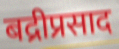
बद्रीप्रसाद